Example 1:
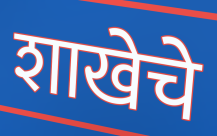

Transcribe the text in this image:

शाखेचे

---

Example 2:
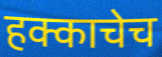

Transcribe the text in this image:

हक्काचेच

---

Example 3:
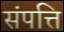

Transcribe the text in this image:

संपत्ति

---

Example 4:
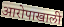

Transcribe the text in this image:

आरोपाखाली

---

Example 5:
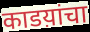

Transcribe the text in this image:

काडय़ांचा